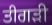
ਤੀਗੜੀ